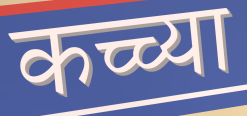
कच्च्या